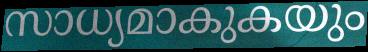
സാധ്യമാകുകയും